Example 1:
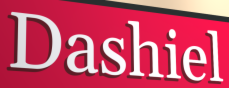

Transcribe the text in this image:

Dashiel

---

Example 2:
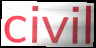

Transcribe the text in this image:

civil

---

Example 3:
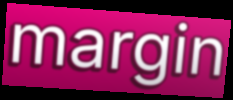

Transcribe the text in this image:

margin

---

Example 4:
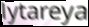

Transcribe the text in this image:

Iytareya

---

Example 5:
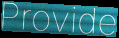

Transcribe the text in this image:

Provide